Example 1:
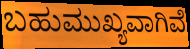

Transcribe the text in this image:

ಬಹುಮುಖ್ಯವಾಗಿವೆ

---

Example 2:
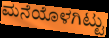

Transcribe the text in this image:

ಮನೆಯೊಳಗಿಟ್ಟು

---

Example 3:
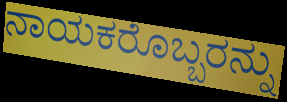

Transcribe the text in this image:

ನಾಯಕರೊಬ್ಬರನ್ನು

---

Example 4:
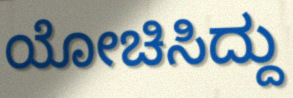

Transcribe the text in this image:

ಯೋಚಿಸಿದ್ದು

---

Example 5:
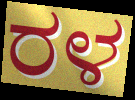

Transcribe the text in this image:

ರಳ